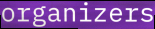
organizers